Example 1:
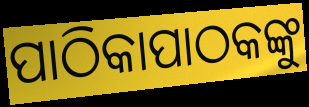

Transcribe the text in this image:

ପାଠିକାପାଠକଙ୍କୁ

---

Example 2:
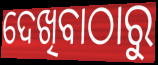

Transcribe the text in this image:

ଦେଖିବାଠାରୁ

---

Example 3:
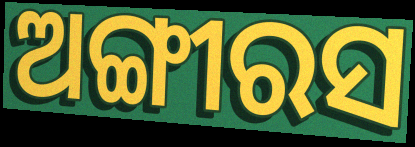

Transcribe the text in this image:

ଅଙ୍ଗୀରସ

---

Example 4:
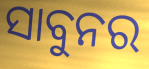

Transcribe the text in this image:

ସାବୁନର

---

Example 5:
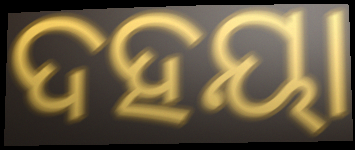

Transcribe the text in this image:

ଦହୟା